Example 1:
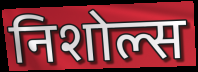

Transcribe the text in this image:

निशोल्स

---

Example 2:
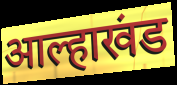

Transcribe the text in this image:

आल्हाखंड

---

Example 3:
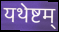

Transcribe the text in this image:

यथेष्टम्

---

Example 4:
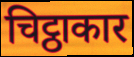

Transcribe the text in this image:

चिट्ठाकार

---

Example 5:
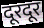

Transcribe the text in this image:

दूरदूर